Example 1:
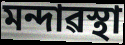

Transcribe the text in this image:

মন্দাৱস্থা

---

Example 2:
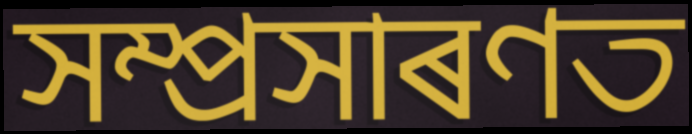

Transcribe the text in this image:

সম্প্ৰসাৰণত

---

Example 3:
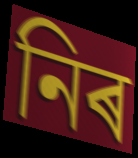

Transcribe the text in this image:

নিৰ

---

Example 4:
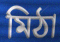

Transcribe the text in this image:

মিঠা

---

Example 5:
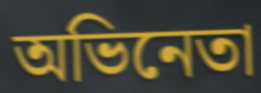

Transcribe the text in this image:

অভিনেতা